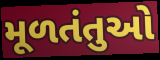
મૂળતંતુઓ